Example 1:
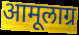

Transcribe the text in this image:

आमूलाग्र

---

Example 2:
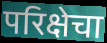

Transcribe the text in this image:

परिक्षेचा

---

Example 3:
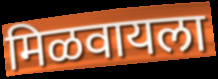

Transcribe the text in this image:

मिळवायला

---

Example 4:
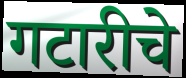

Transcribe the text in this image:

गटारीचे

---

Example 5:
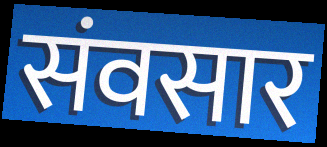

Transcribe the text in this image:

संवसार